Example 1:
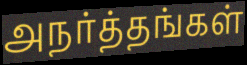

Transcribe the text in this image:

அநர்த்தங்கள்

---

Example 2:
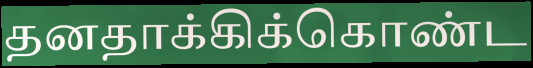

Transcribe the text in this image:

தனதாக்கிக்கொண்ட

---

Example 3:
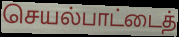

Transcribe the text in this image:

செயல்பாட்டைத்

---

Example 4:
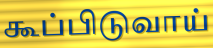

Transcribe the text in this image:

கூப்பிடுவாய்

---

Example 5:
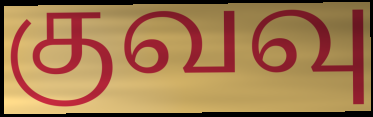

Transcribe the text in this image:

குவவு